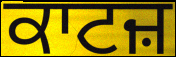
ਕਾਟਜ਼